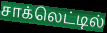
சாக்லெட்டில்